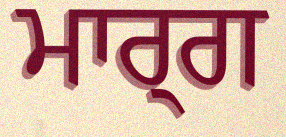
ਮਾਰ੍ਗ